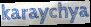
karaychya